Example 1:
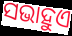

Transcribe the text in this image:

ସଭାହୁଏ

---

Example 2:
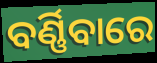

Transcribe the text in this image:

ବର୍ଣ୍ଣିବାରେ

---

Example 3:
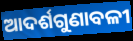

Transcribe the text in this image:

ଆଦର୍ଶଗୁଣାବଳୀ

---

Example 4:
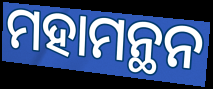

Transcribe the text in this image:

ମହାମନ୍ଥନ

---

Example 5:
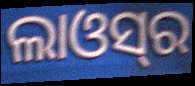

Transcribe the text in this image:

ଲାଓସ୍‌ର